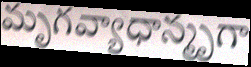
మృగవ్యాధాన్మృగా